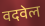
वदवेल